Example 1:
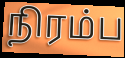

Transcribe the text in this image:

நிரம்ப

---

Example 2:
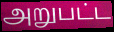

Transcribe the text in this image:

அறுபட்ட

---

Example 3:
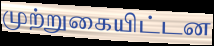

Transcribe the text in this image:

முற்றுகையிட்டன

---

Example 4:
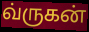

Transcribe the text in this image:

வ்ருகன்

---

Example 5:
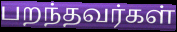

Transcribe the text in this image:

பறந்தவர்கள்